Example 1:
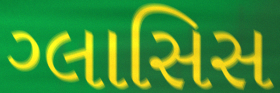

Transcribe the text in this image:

ગ્લાસિસ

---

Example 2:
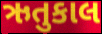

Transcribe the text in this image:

ઋતુકાલ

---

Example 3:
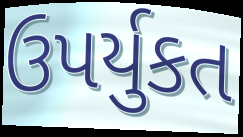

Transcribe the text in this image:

ઉપર્યુકત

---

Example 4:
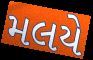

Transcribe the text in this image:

મલયે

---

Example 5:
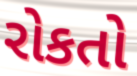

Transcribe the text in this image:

રોકતો